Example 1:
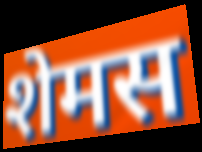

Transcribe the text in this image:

शेमस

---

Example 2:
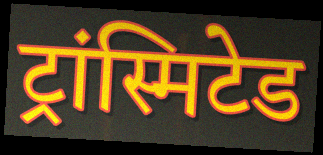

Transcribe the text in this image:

ट्रांस्मिटेड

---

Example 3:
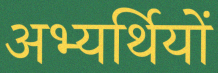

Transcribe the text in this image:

अभ्यर्थियों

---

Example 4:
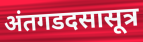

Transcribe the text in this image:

अंतगडदसासूत्र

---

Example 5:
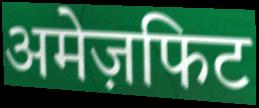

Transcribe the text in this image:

अमेज़फिट